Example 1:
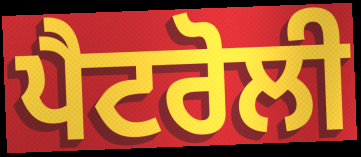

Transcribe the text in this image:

ਪੈਟਰੋਲੀ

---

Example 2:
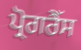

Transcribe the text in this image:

ਪ੍ਰੋਗਰੈੱਸ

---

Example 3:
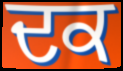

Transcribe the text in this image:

ਦਕ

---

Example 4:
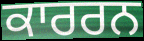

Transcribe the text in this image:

ਕਾਰਰਨ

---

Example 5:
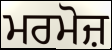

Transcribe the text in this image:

ਮਰਮੋਜ਼